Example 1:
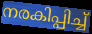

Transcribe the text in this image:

നരകിപ്പിച്ച്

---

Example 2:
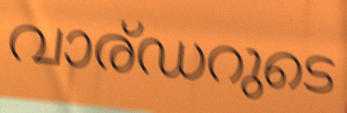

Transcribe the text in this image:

വാര്ഡറുടെ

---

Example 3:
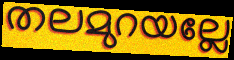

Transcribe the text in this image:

തലമുറയല്ലേ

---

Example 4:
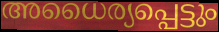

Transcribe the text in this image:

അധൈര്യപ്പെട്ടും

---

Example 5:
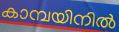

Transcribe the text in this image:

കാമ്പയിനിൽ